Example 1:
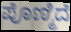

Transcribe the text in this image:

ಪೊಣ್ಮಿದೆ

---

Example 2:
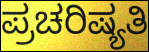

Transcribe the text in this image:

ಪ್ರಚರಿಷ್ಯತಿ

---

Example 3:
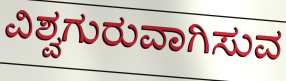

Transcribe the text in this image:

ವಿಶ್ವಗುರುವಾಗಿಸುವ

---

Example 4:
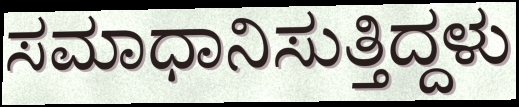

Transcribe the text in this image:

ಸಮಾಧಾನಿಸುತ್ತಿದ್ದಳು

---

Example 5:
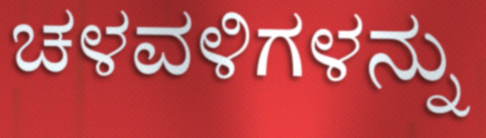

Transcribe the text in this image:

ಚಳವಳಿಗಳನ್ನು